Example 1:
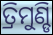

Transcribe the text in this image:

ତ୍ରିମୁଣ୍ଡି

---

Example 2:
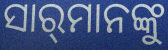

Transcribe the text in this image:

ସାର୍‌ମାନଙ୍କୁ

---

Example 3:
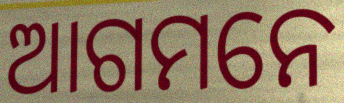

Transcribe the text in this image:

ଆଗମନେ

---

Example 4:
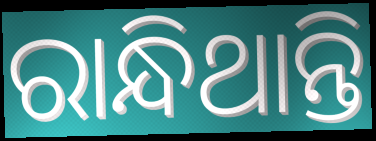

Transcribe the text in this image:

ରାନ୍ଧିଥାନ୍ତି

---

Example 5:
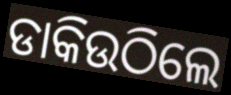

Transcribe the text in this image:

ଡାକିଉଠିଲେ